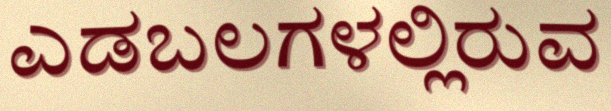
ಎಡಬಲಗಳಲ್ಲಿರುವ